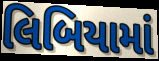
લિબિયામાં